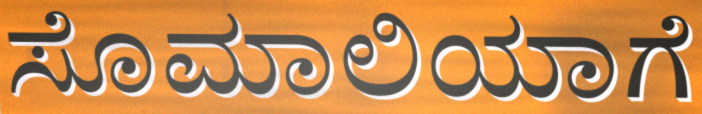
ಸೊಮಾಲಿಯಾಗೆ